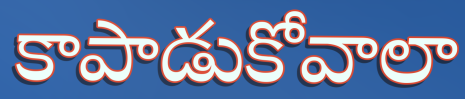
కాపాడుకోవాలా